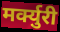
मर्क्युरी